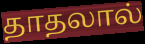
தாதலால்